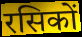
रसिकों